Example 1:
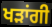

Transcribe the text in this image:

ਖੜਾਂਗੀ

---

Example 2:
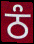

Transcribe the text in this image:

ਠੰ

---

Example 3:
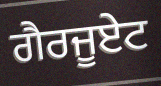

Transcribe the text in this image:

ਗੈਰਜੂਏਟ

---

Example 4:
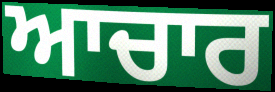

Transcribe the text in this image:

ਆਚਾਰ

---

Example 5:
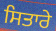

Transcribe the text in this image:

ਸਿਤਾਰੇ